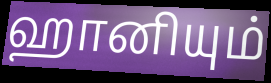
ஹானியும்